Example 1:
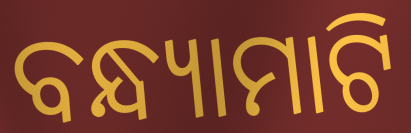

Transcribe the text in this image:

ବନ୍ଧ୍ୟାମାଟି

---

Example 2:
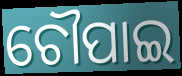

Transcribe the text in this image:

ଚୌପାଇ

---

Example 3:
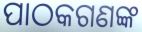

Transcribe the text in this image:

ପାଠକଗଣଙ୍କ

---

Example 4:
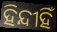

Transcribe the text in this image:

ହିନ୍ଦୀହିଁ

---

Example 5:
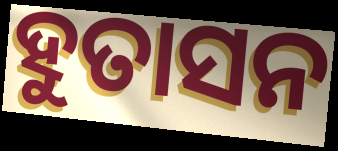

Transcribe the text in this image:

ହୁତାସନ